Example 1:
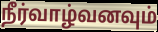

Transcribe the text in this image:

நீர்வாழ்வனவும்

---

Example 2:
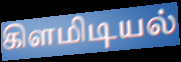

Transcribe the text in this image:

கிளமிடியல்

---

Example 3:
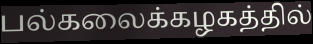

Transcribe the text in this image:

பல்கலைக்கழகத்தில்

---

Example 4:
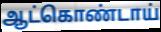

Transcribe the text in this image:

ஆட்கொண்டாய்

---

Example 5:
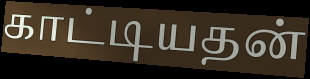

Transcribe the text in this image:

காட்டியதன்